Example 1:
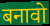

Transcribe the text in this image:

बनावो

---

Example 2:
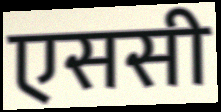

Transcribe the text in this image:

एससी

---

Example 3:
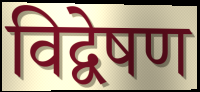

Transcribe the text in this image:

विद्वेषण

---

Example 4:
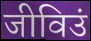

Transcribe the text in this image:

जीविउं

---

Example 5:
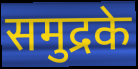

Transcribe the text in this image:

समुद्रके